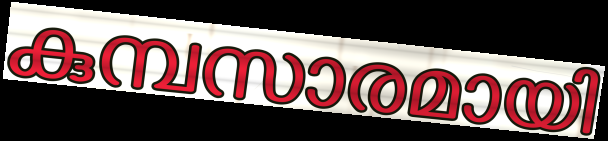
കുമ്പസാരമായി